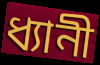
ধ্যানী